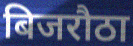
बिजरौठा